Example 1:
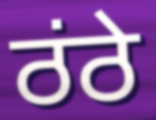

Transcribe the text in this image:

ठंठे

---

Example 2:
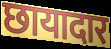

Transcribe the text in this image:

छायादार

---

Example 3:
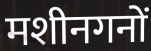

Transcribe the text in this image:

मशीनगनों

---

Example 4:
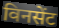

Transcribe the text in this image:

विनसेंट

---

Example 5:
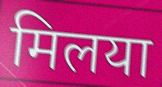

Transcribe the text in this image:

मिलया